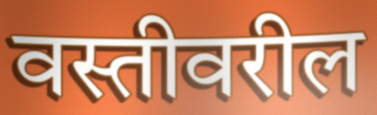
वस्तीवरील